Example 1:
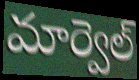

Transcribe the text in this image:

మార్వెల్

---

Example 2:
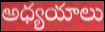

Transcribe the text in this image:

అధ్యయాలు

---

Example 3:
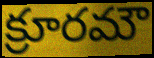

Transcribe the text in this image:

క్రూరమౌ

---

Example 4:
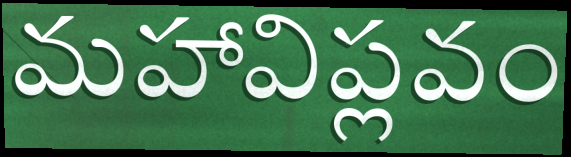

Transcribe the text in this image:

మహావిప్లవం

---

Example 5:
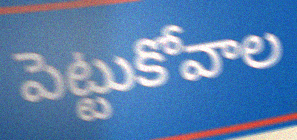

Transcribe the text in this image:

పెట్టుకోవాల